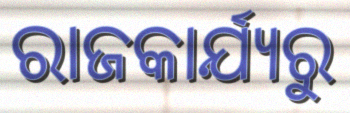
ରାଜକାର୍ଯ୍ୟରୁ